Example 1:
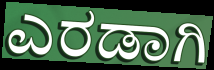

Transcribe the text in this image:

ಎರಡಾಗಿ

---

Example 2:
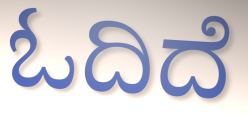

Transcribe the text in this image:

ಓದಿದೆ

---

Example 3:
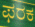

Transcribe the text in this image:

ಫರಕ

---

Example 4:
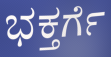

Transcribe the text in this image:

ಭಕ್ತರ್ಗೆ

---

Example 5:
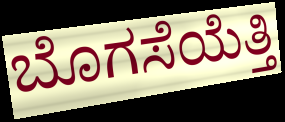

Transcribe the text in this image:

ಬೊಗಸೆಯೆತ್ತಿ